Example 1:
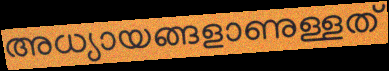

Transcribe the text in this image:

അധ്യായങ്ങളാണുള്ളത്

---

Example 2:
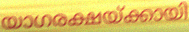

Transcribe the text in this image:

യാഗരക്ഷയ്ക്കായി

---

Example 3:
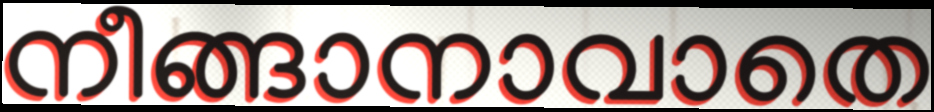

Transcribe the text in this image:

നീങ്ങാനാവാതെ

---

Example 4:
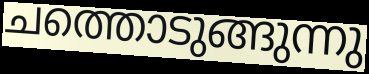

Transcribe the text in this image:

ചത്തൊടുങ്ങുന്നു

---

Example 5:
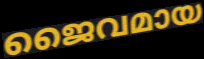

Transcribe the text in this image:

ജൈവമായ